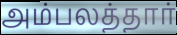
அம்பலத்தார்